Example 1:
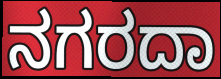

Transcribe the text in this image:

ನಗರದಾ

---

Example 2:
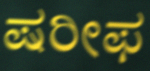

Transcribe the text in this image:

ಷರೀಫ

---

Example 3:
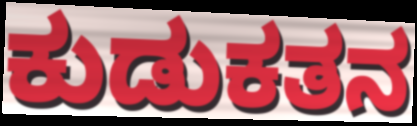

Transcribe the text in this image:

ಕುಡುಕತನ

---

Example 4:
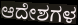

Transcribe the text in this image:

ಆದೇಶಗಳ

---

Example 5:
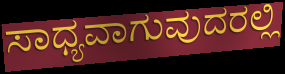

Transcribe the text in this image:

ಸಾಧ್ಯವಾಗುವುದರಲ್ಲಿ